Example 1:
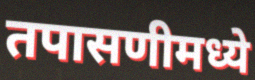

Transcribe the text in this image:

तपासणीमध्ये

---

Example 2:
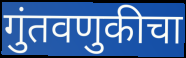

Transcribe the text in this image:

गुंतवणुकीचा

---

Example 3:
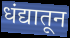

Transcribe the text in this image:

धंद्यातून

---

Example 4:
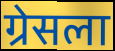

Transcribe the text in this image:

ग्रेसला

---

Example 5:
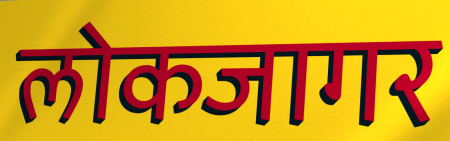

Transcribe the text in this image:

लोकजागर